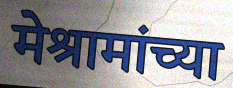
मेश्रामांच्या